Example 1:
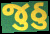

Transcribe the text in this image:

જુઠુ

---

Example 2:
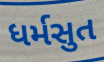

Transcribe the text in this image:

ધર્મસુત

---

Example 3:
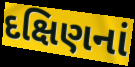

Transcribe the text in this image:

દક્ષિણનાં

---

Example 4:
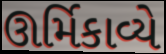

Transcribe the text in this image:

ઊર્મિકાવ્યે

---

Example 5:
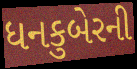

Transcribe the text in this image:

ધનકુબેરની